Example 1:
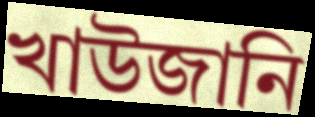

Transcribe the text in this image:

খাউজানি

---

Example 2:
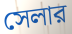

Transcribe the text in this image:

সেলার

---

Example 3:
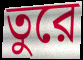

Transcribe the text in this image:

তুরে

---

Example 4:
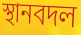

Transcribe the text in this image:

স্থানবদল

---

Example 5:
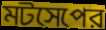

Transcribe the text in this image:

মটসেপের